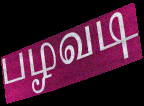
பழவடி